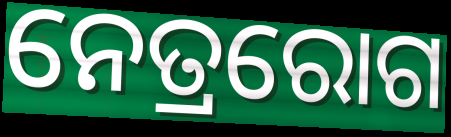
ନେତ୍ରରୋଗ